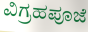
ವಿಗ್ರಹಪೂಜೆ